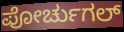
ಪೋರ್ಚುಗಲ್